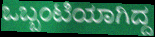
ಒಬ್ಬಂಟಿಯಾಗಿದ್ದ